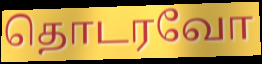
தொடரவோ